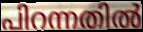
പിറന്നതിൽ